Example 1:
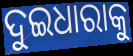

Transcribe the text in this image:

ଦୁଇଧାରାକୁ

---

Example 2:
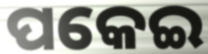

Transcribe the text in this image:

ପକେଇ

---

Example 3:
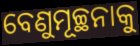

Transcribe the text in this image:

ବେଣୁମୂଚ୍ଛନାକୁ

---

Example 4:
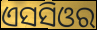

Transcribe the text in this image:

ଏସସିଓର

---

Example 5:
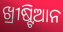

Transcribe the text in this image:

ଖ୍ରୀଷ୍ଟିଆନ